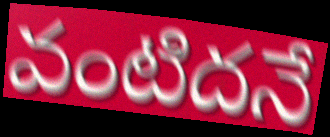
వంటిదనే